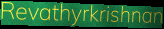
Revathyrkrishnan